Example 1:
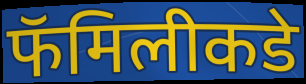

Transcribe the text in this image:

फॅमिलीकडे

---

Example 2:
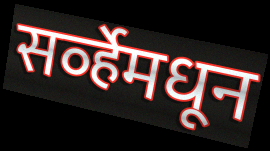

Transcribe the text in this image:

सर्व्हेमधून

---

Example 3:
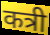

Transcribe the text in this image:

कत्री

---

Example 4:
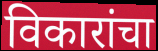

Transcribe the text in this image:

विकारांचा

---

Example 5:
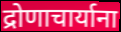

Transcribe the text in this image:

द्रोणाचार्याना